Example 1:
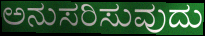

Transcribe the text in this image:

ಅನುಸರಿಸುವುದು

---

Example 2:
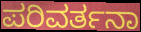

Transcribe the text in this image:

ಪರಿವರ್ತನಾ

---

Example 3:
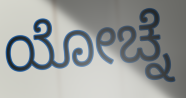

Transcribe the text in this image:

ಯೋಚ್ನೆ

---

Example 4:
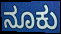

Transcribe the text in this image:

ನೂಕು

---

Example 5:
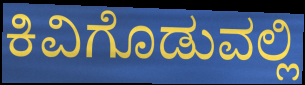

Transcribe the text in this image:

ಕಿವಿಗೊಡುವಲ್ಲಿ